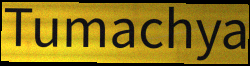
Tumachya